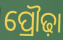
ପ୍ରୌଢ଼ା